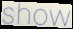
show